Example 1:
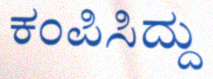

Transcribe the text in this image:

ಕಂಪಿಸಿದ್ದು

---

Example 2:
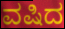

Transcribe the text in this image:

ವಷಿದ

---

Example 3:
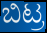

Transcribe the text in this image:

ಬಿಟ್ರ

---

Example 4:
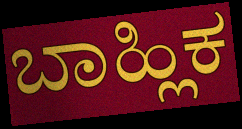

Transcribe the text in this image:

ಬಾಹ್ಲಿಕ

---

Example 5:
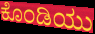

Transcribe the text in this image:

ಕೊಂಡಿಯು